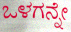
ಒಳಗನ್ನೇ